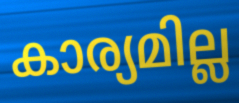
കാര്യമില്ല